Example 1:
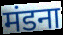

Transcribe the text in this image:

मंडना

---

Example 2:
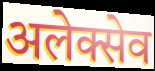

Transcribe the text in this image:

अलेक्सेव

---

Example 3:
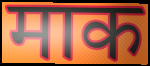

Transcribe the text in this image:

माक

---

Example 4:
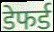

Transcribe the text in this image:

डेफर्ड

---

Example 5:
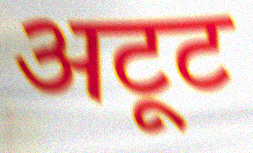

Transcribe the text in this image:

अटूट